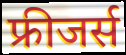
फ्रीजर्स